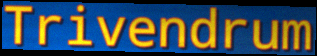
Trivendrum